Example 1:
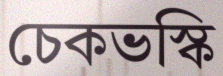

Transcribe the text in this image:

চেকভস্কি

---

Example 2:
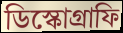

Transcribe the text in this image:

ডিস্কোগ্রাফি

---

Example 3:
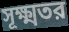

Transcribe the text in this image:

সূক্ষ্মতর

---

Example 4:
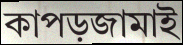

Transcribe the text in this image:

কাপড়জামাই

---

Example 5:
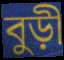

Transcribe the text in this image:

বুড়ী